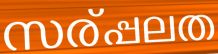
സര്പ്പലത